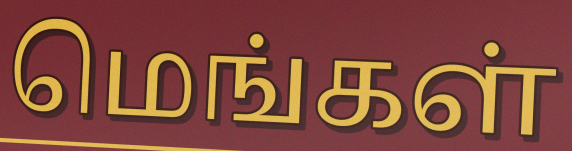
மெங்கள்